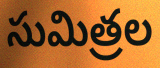
సుమిత్రల